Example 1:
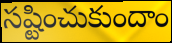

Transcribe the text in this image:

సష్టించుకుందాం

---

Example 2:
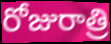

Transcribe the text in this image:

రోజురాత్రి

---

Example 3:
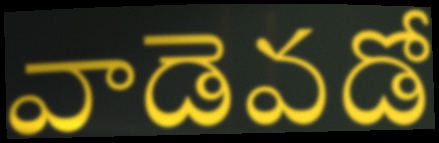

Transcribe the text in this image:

వాడెవడో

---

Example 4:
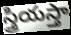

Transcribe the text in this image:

స్త్రియస్తా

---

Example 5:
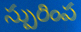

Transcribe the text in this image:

స్పురింప